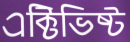
এক্টিভিষ্ট